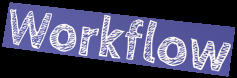
Workflow